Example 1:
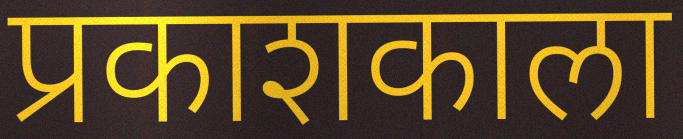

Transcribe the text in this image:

प्रकाशकाला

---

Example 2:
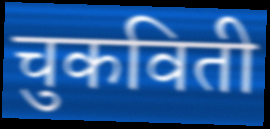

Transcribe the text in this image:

चुकविती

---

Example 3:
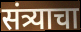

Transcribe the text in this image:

संत्र्याचा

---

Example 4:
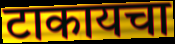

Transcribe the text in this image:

टाकायचा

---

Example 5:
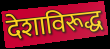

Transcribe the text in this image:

देशाविरूद्ध